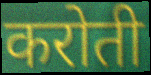
करोती